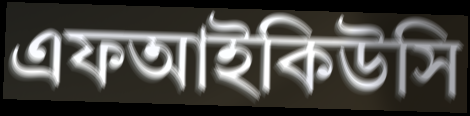
এফআইকিউসি